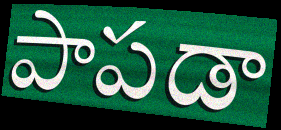
పాపడా